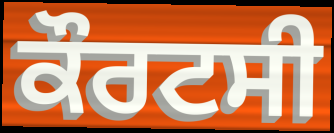
ਕੌਰਟਸੀ